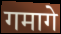
गमागे